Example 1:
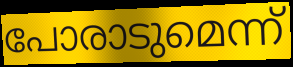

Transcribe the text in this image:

പോരാടുമെന്ന്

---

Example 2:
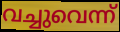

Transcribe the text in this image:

വച്ചുവെന്ന്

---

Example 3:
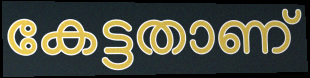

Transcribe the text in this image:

കേട്ടതാണ്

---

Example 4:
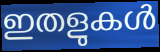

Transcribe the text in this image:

ഇതളുകൾ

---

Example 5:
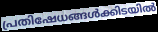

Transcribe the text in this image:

പ്രതിഷേധങ്ങൾക്കിടയിൽ